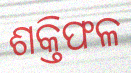
ଶକ୍ତିଫଳ